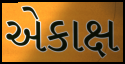
એકાક્ષ